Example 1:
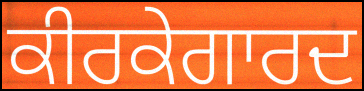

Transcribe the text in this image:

ਕੀਰਕੇਗਾਰਦ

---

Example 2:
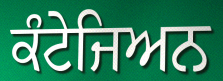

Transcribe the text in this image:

ਕੰਟੇਜਿਅਨ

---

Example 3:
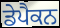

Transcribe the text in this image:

ਡੇਪੈਕਨ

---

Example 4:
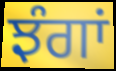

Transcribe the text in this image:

ਝੰਗਾਂ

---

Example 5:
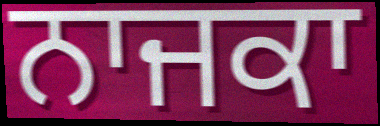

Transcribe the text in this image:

ਨਾਜਕਾ